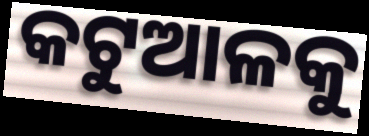
କଟୁଆଳକୁ